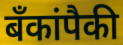
बँकांपैकी